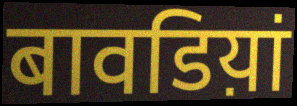
बावडिय़ां